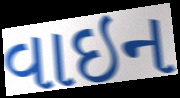
વાઇન